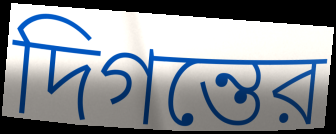
দিগন্তের